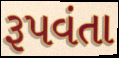
રૂપવંતા